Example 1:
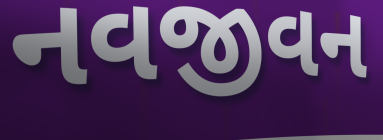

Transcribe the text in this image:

નવજીવન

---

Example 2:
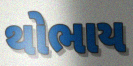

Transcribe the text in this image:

થોભાય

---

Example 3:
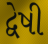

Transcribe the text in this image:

દ્વેષી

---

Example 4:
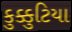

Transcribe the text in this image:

કુક્કુટિયા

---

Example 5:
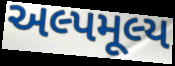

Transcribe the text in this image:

અલ્પમૂલ્ય